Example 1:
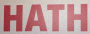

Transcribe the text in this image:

HATH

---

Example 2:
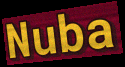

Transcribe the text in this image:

Nuba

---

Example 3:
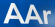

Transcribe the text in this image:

AAr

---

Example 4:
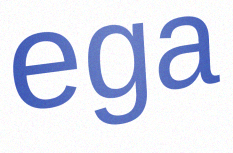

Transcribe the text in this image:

ega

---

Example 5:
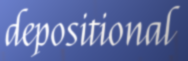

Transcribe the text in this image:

depositional